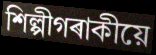
শিল্পীগৰাকীয়ে